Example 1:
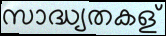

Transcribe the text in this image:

സാദ്ധ്യതകള്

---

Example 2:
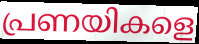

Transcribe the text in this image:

പ്രണയികളെ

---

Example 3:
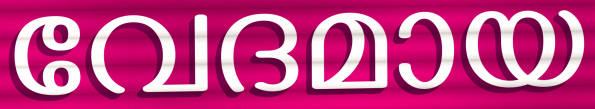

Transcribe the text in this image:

വേദമായ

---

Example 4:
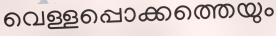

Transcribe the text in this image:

വെള്ളപ്പൊക്കത്തെയും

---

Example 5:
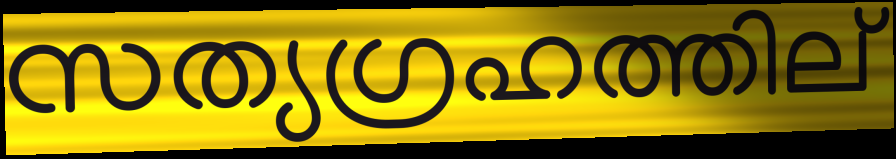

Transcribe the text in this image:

സത്യഗ്രഹത്തില്